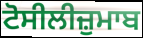
ਟੋਸੀਲੀਜ਼ੁਮਾਬ